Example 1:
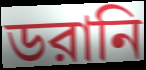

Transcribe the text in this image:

ডরানি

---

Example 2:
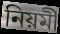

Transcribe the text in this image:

নিয়মী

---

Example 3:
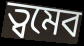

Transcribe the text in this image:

ত্বমেব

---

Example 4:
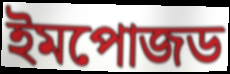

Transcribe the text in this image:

ইমপোজড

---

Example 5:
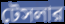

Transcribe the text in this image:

টেসলার